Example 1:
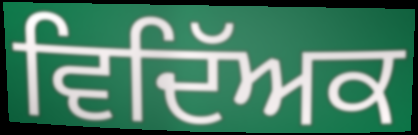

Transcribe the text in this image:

ਵਿਦਿੱਅਕ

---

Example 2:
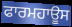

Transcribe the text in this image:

ਫਾਰਮਹਾਊਸ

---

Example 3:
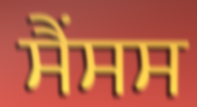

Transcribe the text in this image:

ਸੈਂਸਸ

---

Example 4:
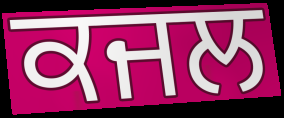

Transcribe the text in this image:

ਕਜਲ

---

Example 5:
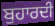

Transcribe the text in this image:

ਬੁਹਾਰਦੀ